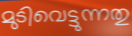
മുടിവെട്ടുന്നതു